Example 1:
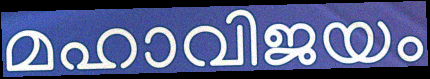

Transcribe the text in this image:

മഹാവിജയം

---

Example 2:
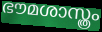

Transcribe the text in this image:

ഭൗമശാസ്ത്രം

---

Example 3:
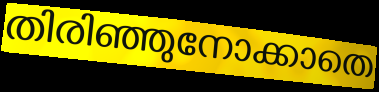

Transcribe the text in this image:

തിരിഞ്ഞുനോക്കാതെ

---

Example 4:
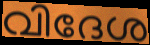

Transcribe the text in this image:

വിദേശ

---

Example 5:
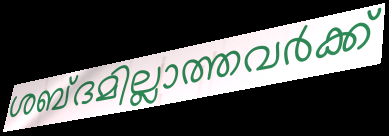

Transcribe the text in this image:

ശബ്ദമില്ലാത്തവർക്ക്